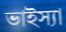
ভাইস্যা